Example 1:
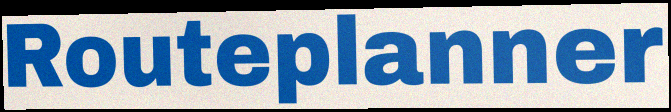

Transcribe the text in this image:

Routeplanner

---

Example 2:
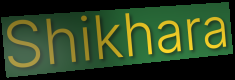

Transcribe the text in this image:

Shikhara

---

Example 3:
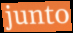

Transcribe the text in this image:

junto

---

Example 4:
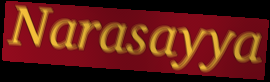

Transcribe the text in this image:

Narasayya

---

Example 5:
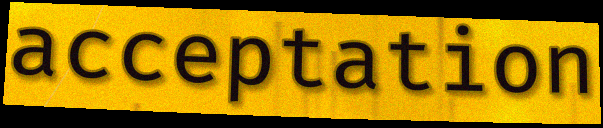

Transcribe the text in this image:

acceptation